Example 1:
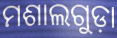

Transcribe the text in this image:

ମଶାଲଗୁଡ଼ା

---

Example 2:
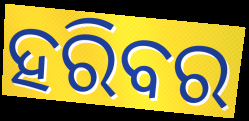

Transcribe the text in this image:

ହରିବର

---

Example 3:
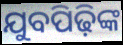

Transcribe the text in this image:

ଯୁବପିଢ଼ିଙ୍କ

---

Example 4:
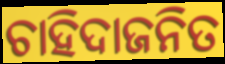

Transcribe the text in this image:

ଚାହିଦାଜନିତ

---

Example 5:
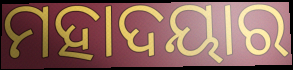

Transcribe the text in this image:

ମହାଦୟାର